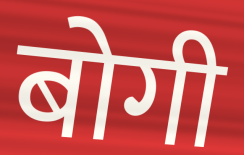
बोगी